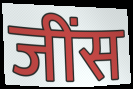
जींस